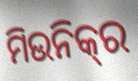
ମିଉନିକ୍‌ର